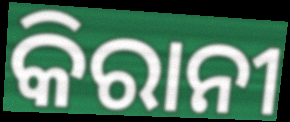
କିରାନୀ